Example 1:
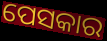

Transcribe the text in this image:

ପେସକାର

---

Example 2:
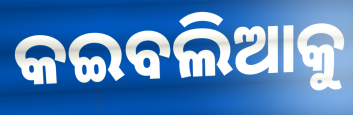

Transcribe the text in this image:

କଇବଲିଆକୁ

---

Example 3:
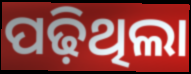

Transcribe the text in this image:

ପଢ଼ିଥିଲା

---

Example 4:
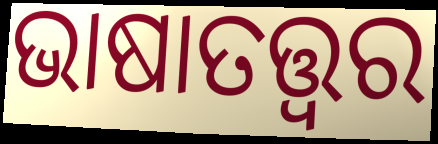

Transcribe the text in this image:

ଭାଷାତତ୍ତ୍ଵର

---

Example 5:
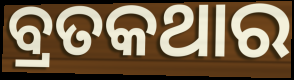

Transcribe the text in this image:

ବ୍ରତକଥାର